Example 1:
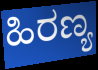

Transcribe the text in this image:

ಹಿರಣ್ಯ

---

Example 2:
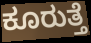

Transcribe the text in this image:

ಕೂರುತ್ತೆ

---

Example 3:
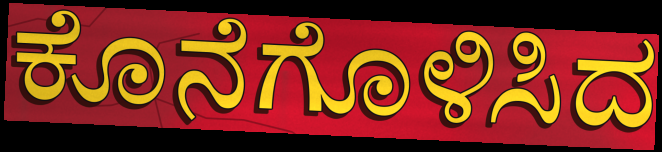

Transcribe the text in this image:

ಕೊನೆಗೊಳಿಸಿದ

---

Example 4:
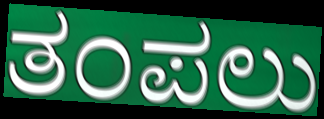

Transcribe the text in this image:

ತಂಪಲು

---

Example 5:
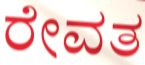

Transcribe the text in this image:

ರೇವತ